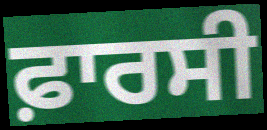
ਫ਼ਾਰਸੀ